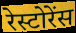
रेस्टोरेंस